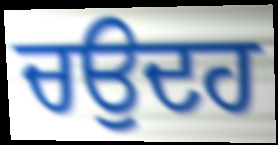
ਚਉਦਹ